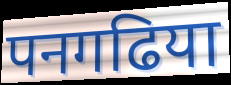
पनगढिया